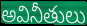
అవినీతులు